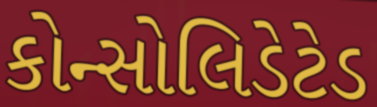
કોન્સોલિડેટેડ